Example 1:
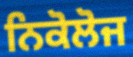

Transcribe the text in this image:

ਨਿਕੋਲੋਜ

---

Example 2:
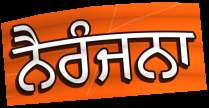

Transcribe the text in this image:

ਨੈਰੰਜਨਾ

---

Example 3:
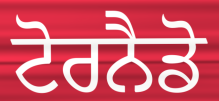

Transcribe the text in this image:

ਟੋਰਨੈਡੋ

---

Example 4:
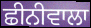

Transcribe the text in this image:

ਛੀਨੀਵਾਲਾ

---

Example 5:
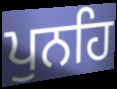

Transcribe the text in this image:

ਪੁਨਹਿ